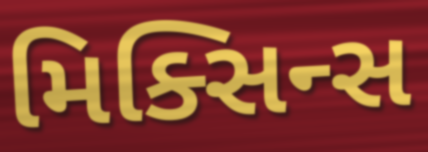
મિક્સિન્સ